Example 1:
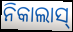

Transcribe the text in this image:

ନିକାଲାସ୍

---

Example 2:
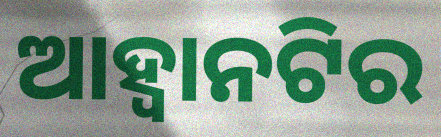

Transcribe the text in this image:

ଆହ୍ଵାନଟିର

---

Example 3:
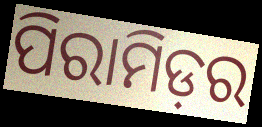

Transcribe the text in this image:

ପିରାମିଡ଼ର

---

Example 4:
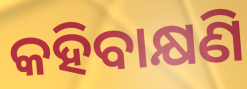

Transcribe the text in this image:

କହିବାକ୍ଷଣି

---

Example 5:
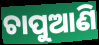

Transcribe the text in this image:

ଚାପୁଆଣି